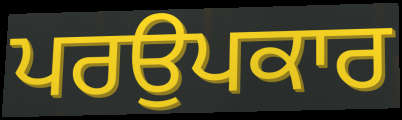
ਪਰਉਪਕਾਰ